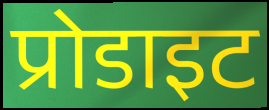
प्रोडाइट